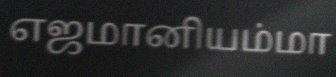
எஜமானியம்மா